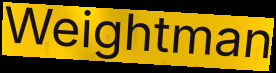
Weightman